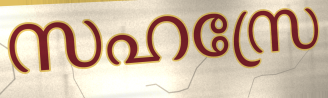
സഹസ്രേ